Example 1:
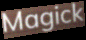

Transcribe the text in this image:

Magick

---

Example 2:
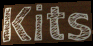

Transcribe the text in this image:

Kits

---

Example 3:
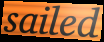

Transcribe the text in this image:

sailed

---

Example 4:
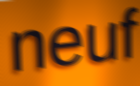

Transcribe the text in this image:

neuf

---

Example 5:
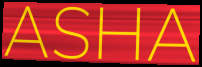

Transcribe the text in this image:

ASHA